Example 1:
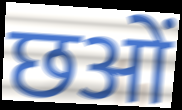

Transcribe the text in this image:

छओं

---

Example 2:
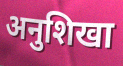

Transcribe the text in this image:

अनुशिखा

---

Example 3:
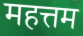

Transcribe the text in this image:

महत्तम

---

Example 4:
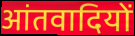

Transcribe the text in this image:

आंतवादियों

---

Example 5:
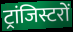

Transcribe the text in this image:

ट्रांजिस्टरों